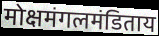
मोक्षमंगलमंडिताय